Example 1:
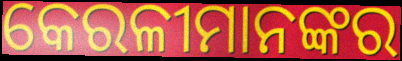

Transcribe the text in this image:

କେରଳୀମାନଙ୍କର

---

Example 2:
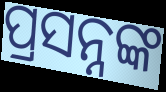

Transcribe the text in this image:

ପ୍ରସନ୍ନଙ୍କ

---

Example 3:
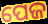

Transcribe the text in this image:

ପେଜ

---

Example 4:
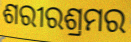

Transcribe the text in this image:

ଶରୀରଶ୍ରମର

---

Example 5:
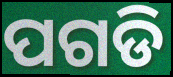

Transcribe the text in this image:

ପଗଡି